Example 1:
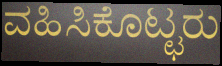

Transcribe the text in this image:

ವಹಿಸಿಕೊಟ್ಟರು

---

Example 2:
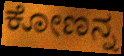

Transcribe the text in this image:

ಕೋಣನ್ನ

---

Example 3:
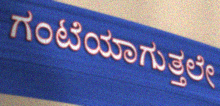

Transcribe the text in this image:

ಗಂಟೆಯಾಗುತ್ತಲೇ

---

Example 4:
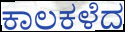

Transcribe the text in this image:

ಕಾಲಕಳೆದ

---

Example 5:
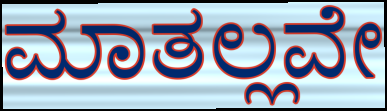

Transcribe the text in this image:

ಮಾತಲ್ಲವೇ